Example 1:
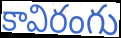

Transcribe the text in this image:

కావిరంగు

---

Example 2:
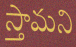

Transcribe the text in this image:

స్తామని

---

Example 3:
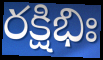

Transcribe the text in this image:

రక్షిభిః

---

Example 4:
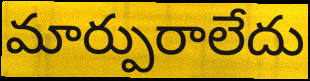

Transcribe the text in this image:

మార్పురాలేదు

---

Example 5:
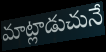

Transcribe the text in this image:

మాట్లాడుచునే